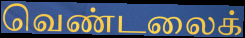
வெண்டலைக்